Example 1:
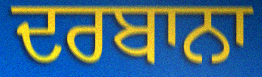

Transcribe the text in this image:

ਦਰਬਾਨਾ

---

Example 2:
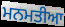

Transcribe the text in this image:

ਮਨਮਤੀਆ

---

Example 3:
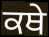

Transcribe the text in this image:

ਕਥੇ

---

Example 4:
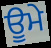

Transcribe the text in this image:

ਊਮੇ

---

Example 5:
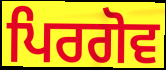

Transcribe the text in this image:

ਪਿਰਗੋਵ